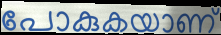
പോകുകയാണ്